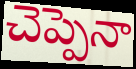
చెప్పెనా